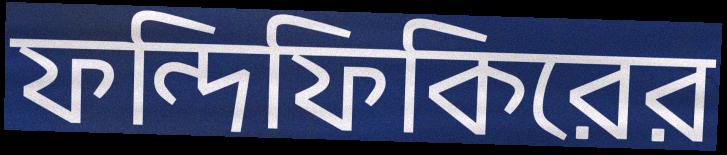
ফন্দিফিকিরের